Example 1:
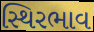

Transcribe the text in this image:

સ્થિરભાવ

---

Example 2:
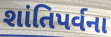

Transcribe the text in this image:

શાંતિપર્વના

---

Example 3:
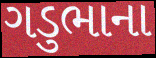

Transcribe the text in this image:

ગડુભાના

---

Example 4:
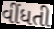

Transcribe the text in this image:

વીંધતી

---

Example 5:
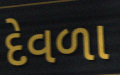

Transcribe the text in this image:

દેવળા